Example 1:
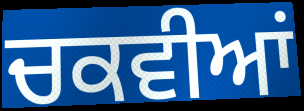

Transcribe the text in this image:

ਚਕਵੀਆਂ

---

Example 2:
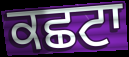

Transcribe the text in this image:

ਕਛਟਾ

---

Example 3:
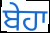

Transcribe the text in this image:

ਬੇਹਾ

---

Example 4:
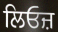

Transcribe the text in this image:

ਲਿਓਜ਼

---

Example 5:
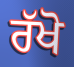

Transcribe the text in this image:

ਰੱਖੋ